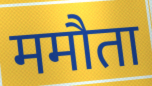
ममौता